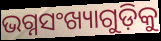
ଭଗ୍ନସଂଖ୍ୟାଗୁଡ଼ିକୁ